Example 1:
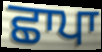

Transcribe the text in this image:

ਛਾਪਾ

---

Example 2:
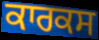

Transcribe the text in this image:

ਕਾਰਕਸ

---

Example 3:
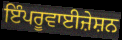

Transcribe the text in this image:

ਇੰਪਰੂਵਾਈਜ਼ੇਸ਼ਨ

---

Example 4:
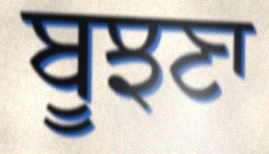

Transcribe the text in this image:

ਬੂਝਣਾ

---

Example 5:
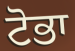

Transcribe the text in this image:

ਟੋਭਾ